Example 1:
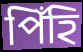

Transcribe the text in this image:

পিঁহি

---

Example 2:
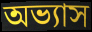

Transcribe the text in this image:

অভ্যাস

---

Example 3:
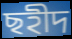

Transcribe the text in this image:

ছহীদ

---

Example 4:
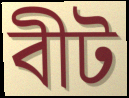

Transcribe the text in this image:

বীট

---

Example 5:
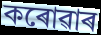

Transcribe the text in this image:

কৰোৱাৰ